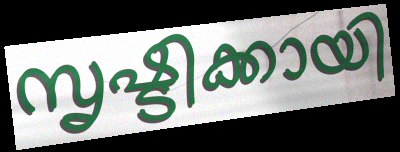
സൃഷ്ടിക്കായി